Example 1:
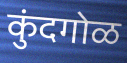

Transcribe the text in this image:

कुंदगोळ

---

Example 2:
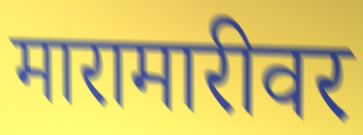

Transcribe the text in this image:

मारामारीवर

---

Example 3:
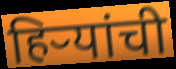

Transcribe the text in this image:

हिऱ्यांची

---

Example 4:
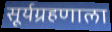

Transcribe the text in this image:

सूर्यग्रहणाला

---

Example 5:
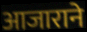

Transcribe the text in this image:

आजाराने